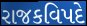
રાજકવિપદે